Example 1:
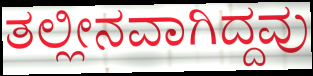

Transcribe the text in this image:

ತಲ್ಲೀನವಾಗಿದ್ದವು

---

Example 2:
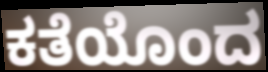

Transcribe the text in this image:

ಕತೆಯೊಂದ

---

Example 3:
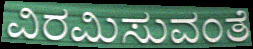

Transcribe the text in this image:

ವಿರಮಿಸುವಂತೆ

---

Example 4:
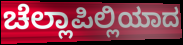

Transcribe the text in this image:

ಚೆಲ್ಲಾಪಿಲ್ಲಿಯಾದ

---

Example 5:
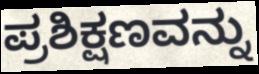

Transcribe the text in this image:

ಪ್ರಶಿಕ್ಷಣವನ್ನು